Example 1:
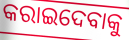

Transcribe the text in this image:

କରାଇଦେବାକୁ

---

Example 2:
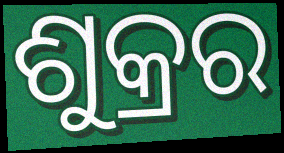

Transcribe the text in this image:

ଶୁକ୍ରର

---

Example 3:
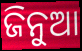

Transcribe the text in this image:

ଜିନୁଆ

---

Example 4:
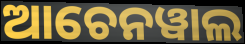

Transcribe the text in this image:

ଆଚେନୱାଲ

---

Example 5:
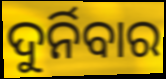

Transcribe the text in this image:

ଦୁର୍ନିବାର